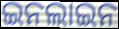
ଇନଲାଇନ